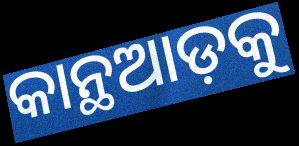
କାନ୍ଥଆଡ଼କୁ